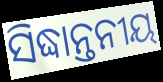
ସିଦ୍ଧାନ୍ତନୀୟ